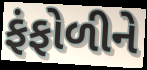
ફંફોળીને